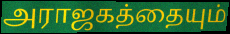
அராஜகத்தையும்